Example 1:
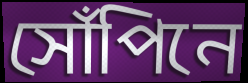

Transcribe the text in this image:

সোঁপিনে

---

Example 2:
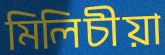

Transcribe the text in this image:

মিলিচীয়া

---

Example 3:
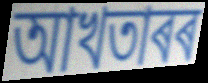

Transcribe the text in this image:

আখতাৰৰ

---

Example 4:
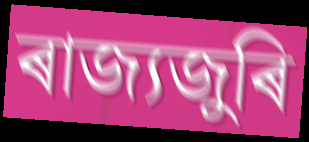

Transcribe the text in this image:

ৰাজ্যজুৰি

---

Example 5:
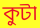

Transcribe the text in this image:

কুটা